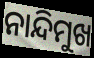
ନାନ୍ଦିମୁଖ